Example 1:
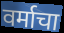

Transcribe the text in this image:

वर्माचा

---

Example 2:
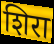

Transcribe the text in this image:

शिरा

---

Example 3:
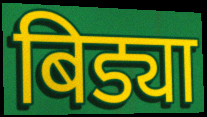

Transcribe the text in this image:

बिड्या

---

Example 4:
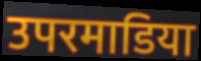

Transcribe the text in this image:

उपरमाडिया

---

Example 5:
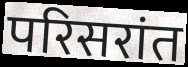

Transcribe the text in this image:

परिसरांत